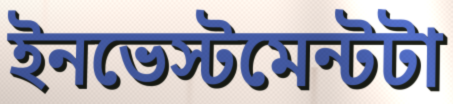
ইনভেস্টমেন্টটা